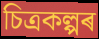
চিত্ৰকল্পৰ